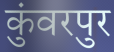
कुंवरपुर